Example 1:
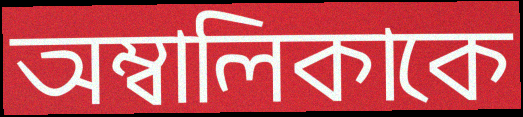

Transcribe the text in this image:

অম্বালিকাকে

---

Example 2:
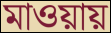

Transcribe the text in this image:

মাওয়ায়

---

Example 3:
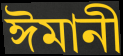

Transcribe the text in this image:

ঈমানী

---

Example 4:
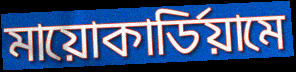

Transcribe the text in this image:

মায়োকার্ডিয়ামে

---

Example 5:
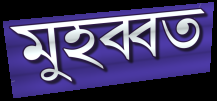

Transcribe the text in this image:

মুহব্বত